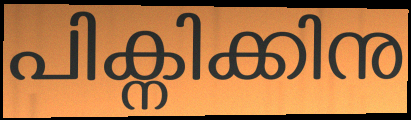
പിക്നിക്കിനു